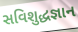
સવિશુદ્ધજ્ઞાન